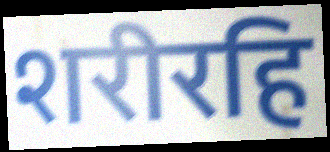
शरीरहि